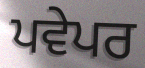
ਪਵੇਪਰ